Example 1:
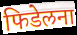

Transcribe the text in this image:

फिडेलना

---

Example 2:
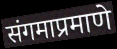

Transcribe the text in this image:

संगमाप्रमाणे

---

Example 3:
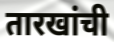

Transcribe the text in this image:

तारखांची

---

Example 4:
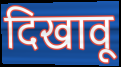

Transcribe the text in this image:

दिखावू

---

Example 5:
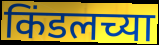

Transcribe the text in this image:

किंडलच्या